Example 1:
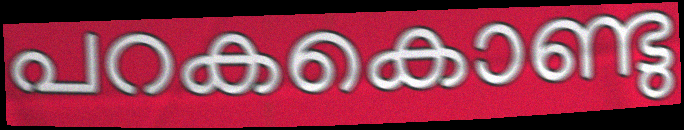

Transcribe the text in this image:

പറകകൊണ്ടു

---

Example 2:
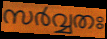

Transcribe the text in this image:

സർവ്വതഃ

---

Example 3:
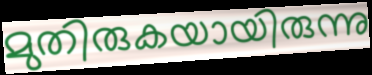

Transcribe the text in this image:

മുതിരുകയായിരുന്നു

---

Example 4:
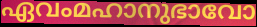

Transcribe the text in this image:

ഏവംമഹാനുഭാവോ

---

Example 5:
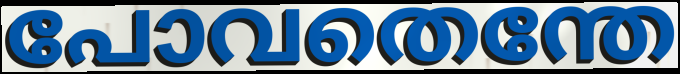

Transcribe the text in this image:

പോവതെന്തേ